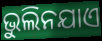
ଭୁଲିନଯାଏ